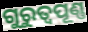
ଗୁରୁତ୍ବପୂଣ୍ଣ